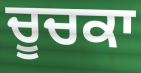
ਚੂਚਕਾ